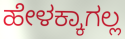
ಹೇಳಕ್ಕಾಗಲ್ಲ